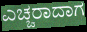
ಎಚ್ಚರಾದಾಗ